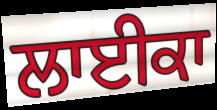
ਲਾਈਕਾ